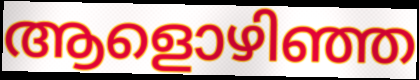
ആളൊഴിഞ്ഞ